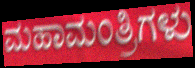
ಮಹಾಮಂತ್ರಿಗಳು